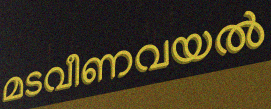
മടവീണവയൽ